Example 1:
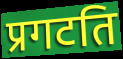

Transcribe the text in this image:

प्रगटति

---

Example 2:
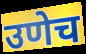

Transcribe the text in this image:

उणेच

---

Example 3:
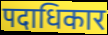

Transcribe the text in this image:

पदाधिकार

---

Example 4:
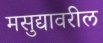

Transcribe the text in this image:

मसुद्यावरील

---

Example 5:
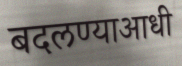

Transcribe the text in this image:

बदलण्याआधी